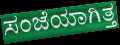
ಸಂಜೆಯಾಗಿತ್ತ